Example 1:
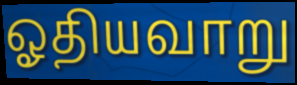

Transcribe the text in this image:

ஓதியவாறு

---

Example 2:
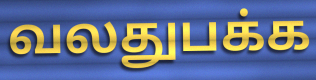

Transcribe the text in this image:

வலதுபக்க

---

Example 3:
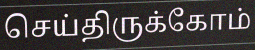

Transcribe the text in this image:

செய்திருக்கோம்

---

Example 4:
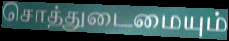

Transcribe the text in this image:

சொத்துடைமையும்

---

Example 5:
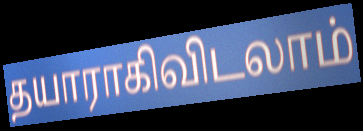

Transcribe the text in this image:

தயாராகிவிடலாம்